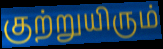
குற்றுயிரும்